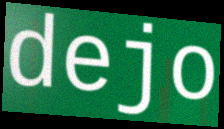
dejo